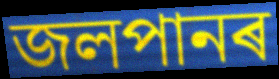
জলপানৰ